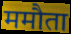
ममौता